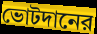
ভোটদানের